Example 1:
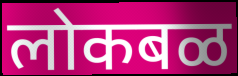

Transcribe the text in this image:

लोकबळ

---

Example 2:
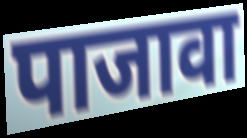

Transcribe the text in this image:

पाजावा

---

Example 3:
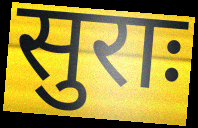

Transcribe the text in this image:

सुराः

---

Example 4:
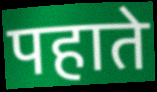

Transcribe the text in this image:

पहाते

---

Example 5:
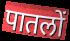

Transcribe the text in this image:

पातलों